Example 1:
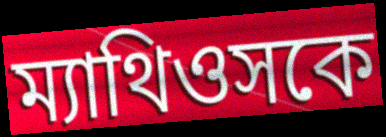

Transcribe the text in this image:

ম্যাথিওসকে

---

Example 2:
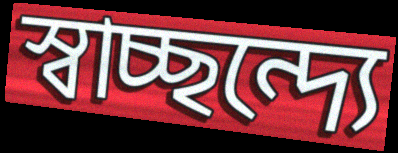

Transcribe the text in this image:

স্বাচ্ছন্দ্যে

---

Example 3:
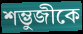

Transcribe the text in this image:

শম্ভুজীকে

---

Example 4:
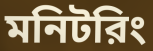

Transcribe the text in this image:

মনিটরিং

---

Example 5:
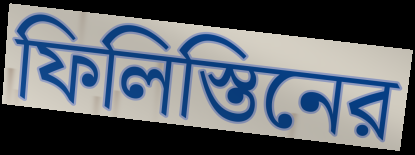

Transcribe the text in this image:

ফিলিস্তিনের